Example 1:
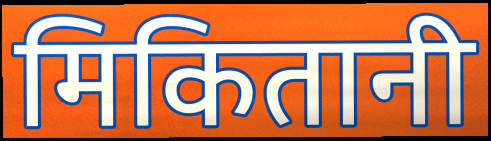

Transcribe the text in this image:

मिकितानी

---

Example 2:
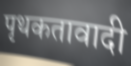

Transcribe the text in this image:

पृथकतावादी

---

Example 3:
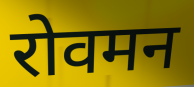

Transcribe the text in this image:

रोवमन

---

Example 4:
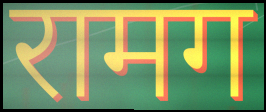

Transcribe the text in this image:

रामग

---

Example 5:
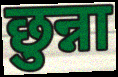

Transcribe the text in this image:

छुन्ना